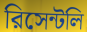
রিসেন্টলি